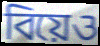
বিয়েও